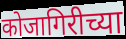
कोजागिरीच्या